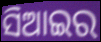
ସିଆଇର